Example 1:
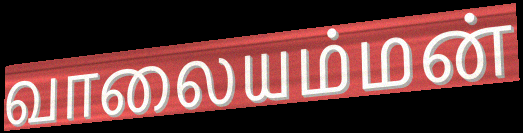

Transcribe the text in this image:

வாலையம்மன்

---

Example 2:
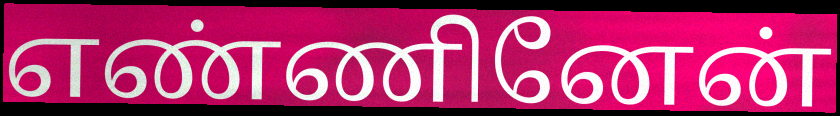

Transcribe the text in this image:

எண்ணினேன்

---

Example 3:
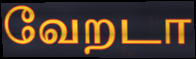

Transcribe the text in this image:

வேறடா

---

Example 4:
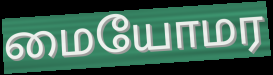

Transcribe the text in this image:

மையோமர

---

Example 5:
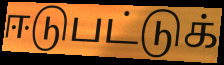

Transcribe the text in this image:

ஈடுபட்டுக்